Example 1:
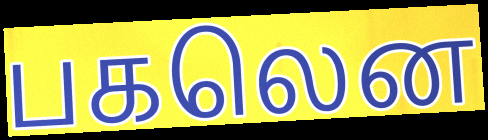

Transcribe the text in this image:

பகலென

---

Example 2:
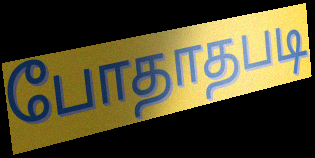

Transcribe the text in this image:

போதாதபடி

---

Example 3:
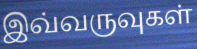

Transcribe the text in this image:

இவ்வருவுகள்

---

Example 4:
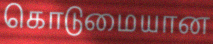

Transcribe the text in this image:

கொடுமையான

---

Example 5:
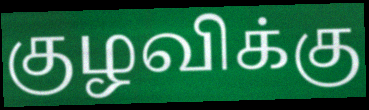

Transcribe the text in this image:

குழவிக்கு